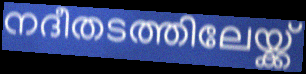
നദീതടത്തിലേയ്ക്ക്